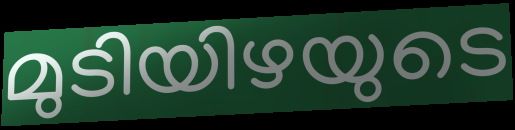
മുടിയിഴയുടെ